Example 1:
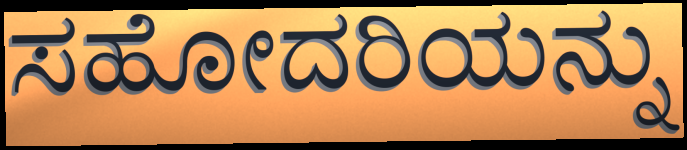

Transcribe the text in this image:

ಸಹೋದರಿಯನ್ನು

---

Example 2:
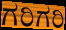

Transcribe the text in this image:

ಗರಿಗರಿ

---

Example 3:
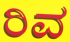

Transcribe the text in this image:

ರಿವ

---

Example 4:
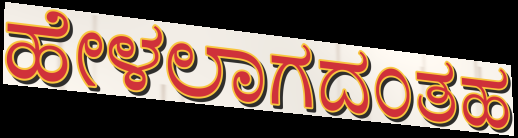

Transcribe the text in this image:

ಹೇಳಲಾಗದಂತಹ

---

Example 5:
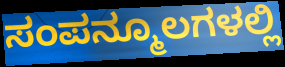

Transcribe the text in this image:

ಸಂಪನ್ಮೂಲಗಳಲ್ಲಿ